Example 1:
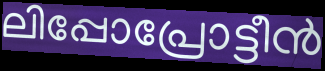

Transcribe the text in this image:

ലിപ്പോപ്രോട്ടീൻ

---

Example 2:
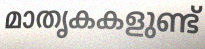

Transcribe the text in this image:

മാതൃകകളുണ്ട്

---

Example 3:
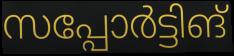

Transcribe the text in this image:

സപ്പോർട്ടിങ്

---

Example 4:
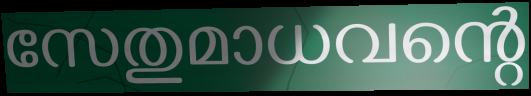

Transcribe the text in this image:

സേതുമാധവന്റെ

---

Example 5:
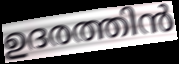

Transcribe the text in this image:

ഉദരത്തിൻ